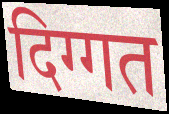
दिग्गत